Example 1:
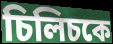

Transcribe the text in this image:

চিলিচকে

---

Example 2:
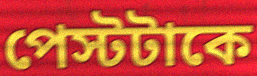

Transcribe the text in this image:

পেস্টটাকে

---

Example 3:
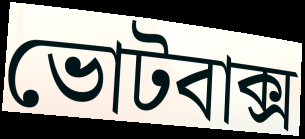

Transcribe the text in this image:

ভোটবাক্স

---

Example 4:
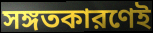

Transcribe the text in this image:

সঙ্গতকারণেই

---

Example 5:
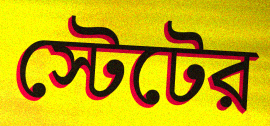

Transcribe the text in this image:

স্টেটের